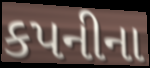
કપનીના